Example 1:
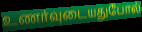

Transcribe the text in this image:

உணர்வுடையதுபோல்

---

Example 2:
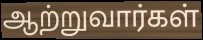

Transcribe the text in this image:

ஆற்றுவார்கள்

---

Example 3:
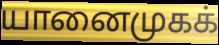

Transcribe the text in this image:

யானைமுகக்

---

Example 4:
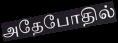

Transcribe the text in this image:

அதேபோதில்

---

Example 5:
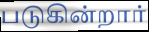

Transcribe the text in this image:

படுகின்றார்